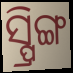
ସ୍ପ୍ରିଙ୍ଗ